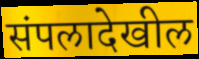
संपलादेखील